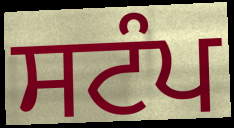
ਸਟੰਪ